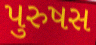
પુરુષસ